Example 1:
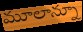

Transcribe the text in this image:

మూలాన్నూ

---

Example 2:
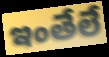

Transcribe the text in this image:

ఇంతేలే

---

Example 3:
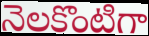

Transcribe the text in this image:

నెలకొంటిగా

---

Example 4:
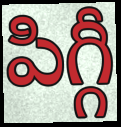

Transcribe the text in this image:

పిగ్గీ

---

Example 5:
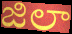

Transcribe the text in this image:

జిలా